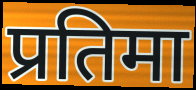
प्रतिमा